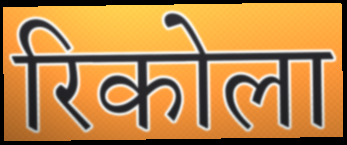
रिकोला